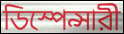
ডিস্পেন্সারী